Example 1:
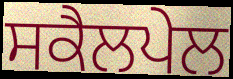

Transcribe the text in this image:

ਸਕੈਲਪੇਲ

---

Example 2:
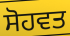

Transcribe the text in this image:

ਸੋਹਵਤ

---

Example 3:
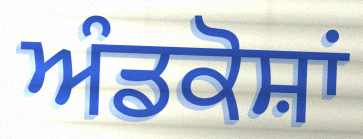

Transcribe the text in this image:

ਅੰਡਕੋਸ਼ਾਂ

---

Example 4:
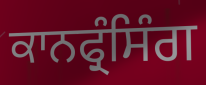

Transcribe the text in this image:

ਕਾਨਫ੍ਰੰਸਿੰਗ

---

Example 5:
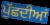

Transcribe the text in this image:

ਪੁੱਛਦੀਆਂ